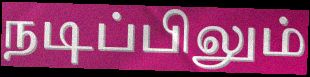
நடிப்பிலும்